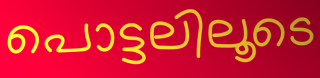
പൊട്ടലിലൂടെ